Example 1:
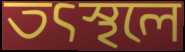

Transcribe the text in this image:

তৎস্থলে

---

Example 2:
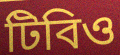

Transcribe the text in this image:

টিবিও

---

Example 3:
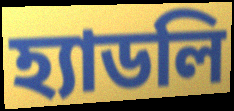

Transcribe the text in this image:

হ্যাডলি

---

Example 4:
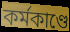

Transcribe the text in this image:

কর্মকাণ্ডে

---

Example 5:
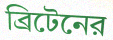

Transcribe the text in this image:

ব্রিটেনের